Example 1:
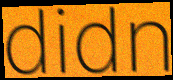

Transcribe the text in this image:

didn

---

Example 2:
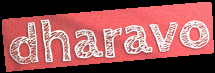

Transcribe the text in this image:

dharavo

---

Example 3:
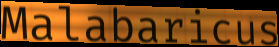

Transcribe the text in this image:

Malabaricus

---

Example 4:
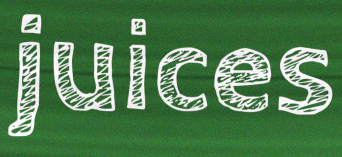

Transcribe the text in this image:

juices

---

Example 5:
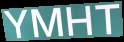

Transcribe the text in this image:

YMHT